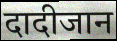
दादीजान